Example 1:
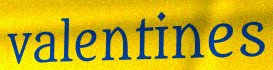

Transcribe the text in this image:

valentines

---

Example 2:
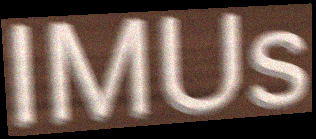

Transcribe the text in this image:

IMUs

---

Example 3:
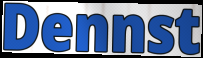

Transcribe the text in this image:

Dennst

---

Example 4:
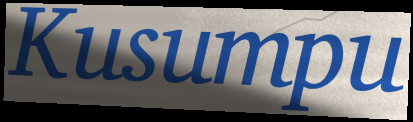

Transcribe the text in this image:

Kusumpu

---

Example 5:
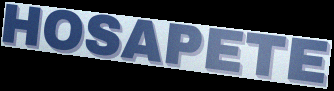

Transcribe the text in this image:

HOSAPETE